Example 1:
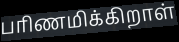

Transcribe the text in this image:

பரிணமிக்கிறாள்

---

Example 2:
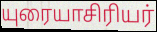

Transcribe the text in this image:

யுரையாசிரியர்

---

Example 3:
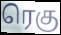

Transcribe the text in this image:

ரெகு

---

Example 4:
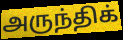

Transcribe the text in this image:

அருந்திக்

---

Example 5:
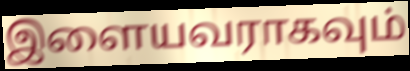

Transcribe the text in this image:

இளையவராகவும்